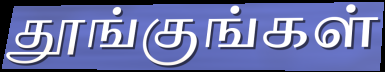
தூங்குங்கள்